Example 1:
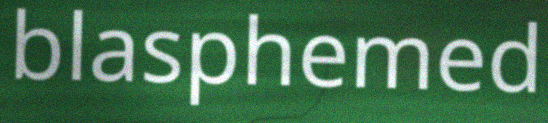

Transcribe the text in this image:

blasphemed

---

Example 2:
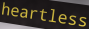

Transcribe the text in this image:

heartless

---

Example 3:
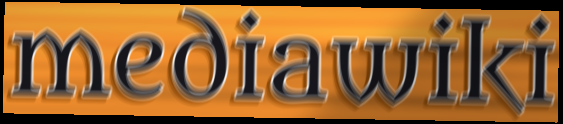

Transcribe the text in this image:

mediawiki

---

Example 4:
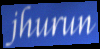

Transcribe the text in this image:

jhurun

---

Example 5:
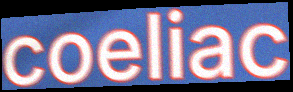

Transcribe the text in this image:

coeliac